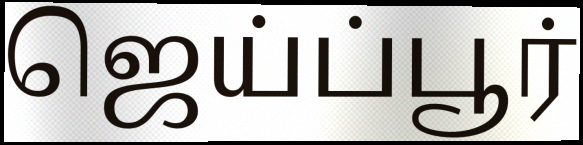
ஜெய்ப்பூர்